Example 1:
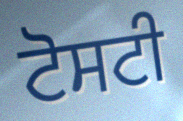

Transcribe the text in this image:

ਟੋਸਟੀ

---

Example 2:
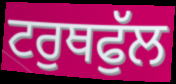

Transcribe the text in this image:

ਟਰੁਥਫੁੱਲ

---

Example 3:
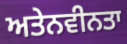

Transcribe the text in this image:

ਅਤੇਨਵੀਨਤਾ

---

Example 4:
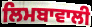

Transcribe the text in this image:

ਲਿਮਬਾਵਾਲੀ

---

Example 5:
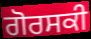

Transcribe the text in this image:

ਗੋਰਸਕੀ